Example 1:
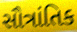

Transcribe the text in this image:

સૌત્રાંતિક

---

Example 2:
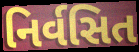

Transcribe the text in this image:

નિર્વસિત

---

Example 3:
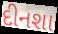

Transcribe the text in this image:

દીનશા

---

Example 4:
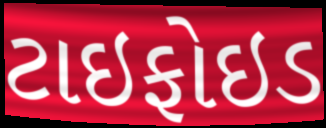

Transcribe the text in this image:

ટાઇફોઇડ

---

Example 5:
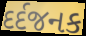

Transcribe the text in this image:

દર્દજનક